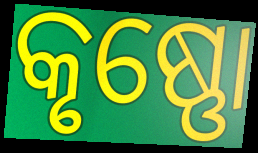
କୃଷ୍ଣୋ